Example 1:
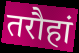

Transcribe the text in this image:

तरौहां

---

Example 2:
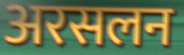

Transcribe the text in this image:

अरसलन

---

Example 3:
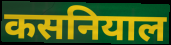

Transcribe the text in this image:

कसनियाल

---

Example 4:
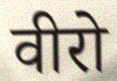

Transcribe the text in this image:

वीरो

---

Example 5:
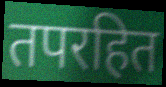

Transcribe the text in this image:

तपरहित